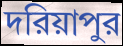
দরিয়াপুর